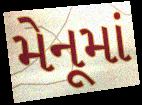
મેનૂમાં